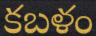
కబళం